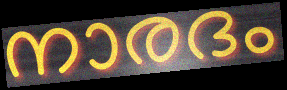
നാരദം